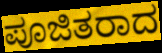
ಪೂಜಿತರಾದ